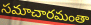
సమాచారమంతా